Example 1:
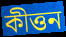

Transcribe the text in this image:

কীত্তন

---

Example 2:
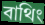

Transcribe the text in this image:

বাথিং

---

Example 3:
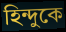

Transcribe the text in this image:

হিন্দুকে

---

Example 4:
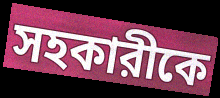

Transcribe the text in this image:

সহকারীকে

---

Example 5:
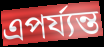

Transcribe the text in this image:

এপর্য্যন্ত